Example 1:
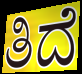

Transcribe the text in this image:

ತಿದೆ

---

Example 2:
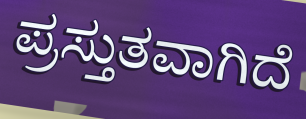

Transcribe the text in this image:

ಪ್ರಸ್ತುತವಾಗಿದೆ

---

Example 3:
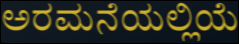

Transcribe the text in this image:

ಅರಮನೆಯಲ್ಲಿಯೆ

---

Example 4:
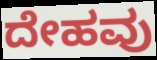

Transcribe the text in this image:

ದೇಹವು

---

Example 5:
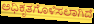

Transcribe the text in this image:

ಅಧಿಕೃತಗೊಳಿಸಲಾಗಿದೆ